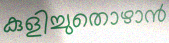
കുളിച്ചുതൊഴാൻ